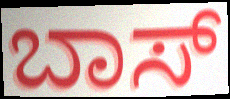
ಬಾಸ್